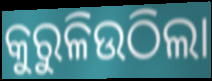
କୁରୁଳିଉଠିଲା